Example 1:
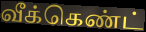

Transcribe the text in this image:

வீக்கெண்ட்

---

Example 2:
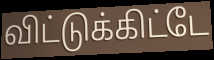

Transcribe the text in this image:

விட்டுக்கிட்டே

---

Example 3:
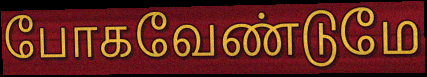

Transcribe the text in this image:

போகவேண்டுமே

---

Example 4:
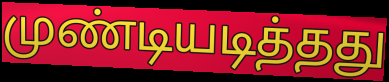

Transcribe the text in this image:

முண்டியடித்தது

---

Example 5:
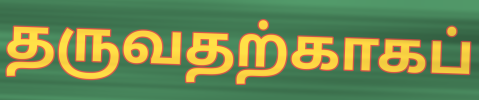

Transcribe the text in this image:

தருவதற்காகப்